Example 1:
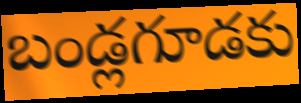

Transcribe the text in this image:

బండ్లగూడకు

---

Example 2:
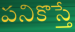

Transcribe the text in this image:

పనికొస్తే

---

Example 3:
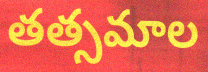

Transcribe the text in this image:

తత్సమాల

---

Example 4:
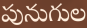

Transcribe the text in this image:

పునుగుల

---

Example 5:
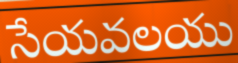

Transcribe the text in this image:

సేయవలయు